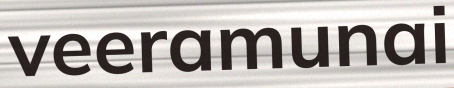
veeramunai